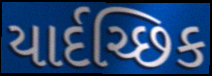
યાર્દચ્છિક